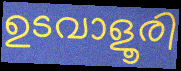
ഉടവാളൂരി